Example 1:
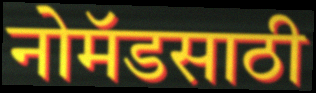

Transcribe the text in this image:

नोमॅडसाठी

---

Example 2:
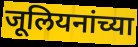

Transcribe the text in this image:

जूलियनांच्या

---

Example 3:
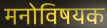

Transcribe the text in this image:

मनोविषयक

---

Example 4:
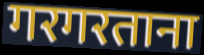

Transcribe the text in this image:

गरगरताना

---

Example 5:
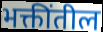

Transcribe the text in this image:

भक्तींतील